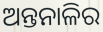
ଅନ୍ତନାଳିର